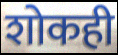
शोकही